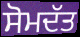
ਸੋਮਦੱਤ